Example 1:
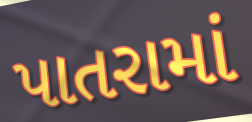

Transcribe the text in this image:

પાતરામાં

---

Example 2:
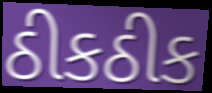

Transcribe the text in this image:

ઠીકઠીક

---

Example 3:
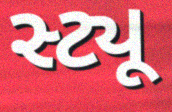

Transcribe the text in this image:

સ્ટ્યૂ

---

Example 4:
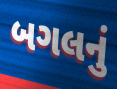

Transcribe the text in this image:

બગલનું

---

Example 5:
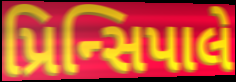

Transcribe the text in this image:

પ્રિન્સિપાલે